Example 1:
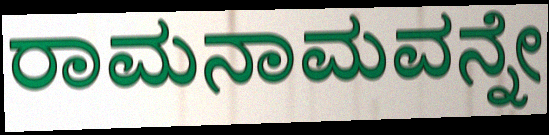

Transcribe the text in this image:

ರಾಮನಾಮವನ್ನೇ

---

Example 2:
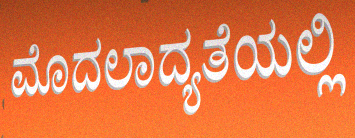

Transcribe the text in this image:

ಮೊದಲಾದ್ಯತೆಯಲ್ಲಿ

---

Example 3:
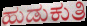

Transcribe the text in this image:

ಹುಡುಕುತಿ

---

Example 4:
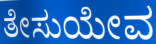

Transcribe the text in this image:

ತೇಸುಯೇವ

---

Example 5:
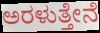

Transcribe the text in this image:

ಅರಳುತ್ತೇನೆ